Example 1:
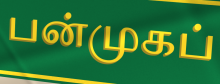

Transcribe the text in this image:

பன்முகப்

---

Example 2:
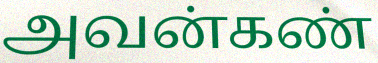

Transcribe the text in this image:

அவன்கண்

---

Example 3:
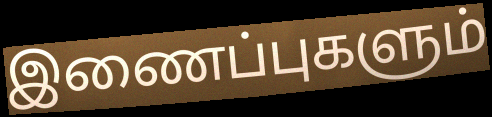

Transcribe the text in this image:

இணைப்புகளும்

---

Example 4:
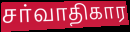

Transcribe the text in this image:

சர்வாதிகார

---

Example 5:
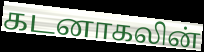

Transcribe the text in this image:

கடனாகலின்